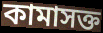
কামাসক্ত